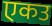
एकउ